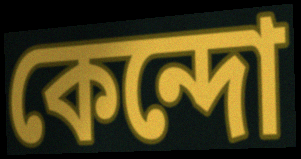
কেন্দো